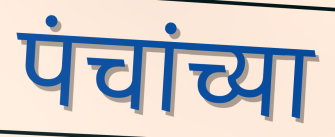
पंचांच्या